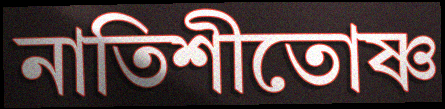
নাতিশীতোষ্ণ